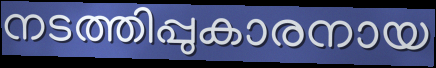
നടത്തിപ്പുകാരനായ